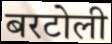
बरटोली